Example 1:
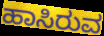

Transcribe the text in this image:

ಹಾಸಿರುವ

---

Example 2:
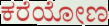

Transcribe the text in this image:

ಕರೆಯೋಣ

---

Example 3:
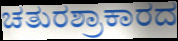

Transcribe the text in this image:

ಚತುರಶ್ರಾಕಾರದ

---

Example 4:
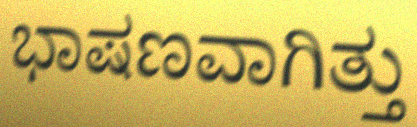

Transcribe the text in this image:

ಭಾಷಣವಾಗಿತ್ತು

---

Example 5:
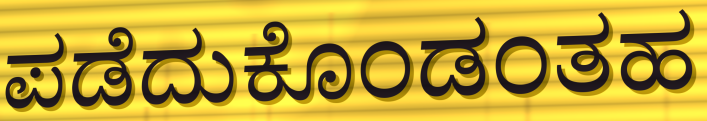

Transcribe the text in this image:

ಪಡೆದುಕೊಂಡಂತಹ